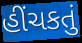
હીંચકતું